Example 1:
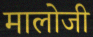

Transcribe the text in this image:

मालोजी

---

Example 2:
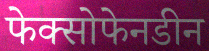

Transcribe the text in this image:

फेक्सोफेनडीन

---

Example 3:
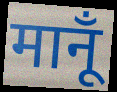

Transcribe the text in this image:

मानूँ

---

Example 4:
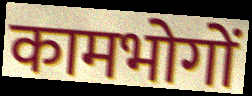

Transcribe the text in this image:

कामभोगों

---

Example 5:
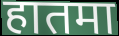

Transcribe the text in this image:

हातमा